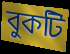
বুকটি